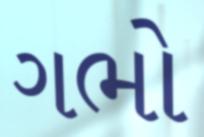
ગભો